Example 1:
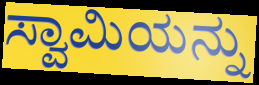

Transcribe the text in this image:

ಸ್ವಾಮಿಯನ್ನು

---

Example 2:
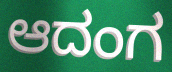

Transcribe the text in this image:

ಆದಂಗ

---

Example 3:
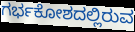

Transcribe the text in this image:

ಗರ್ಭಕೋಶದಲ್ಲಿರುವ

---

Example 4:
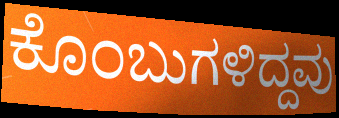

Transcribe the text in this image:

ಕೊಂಬುಗಳಿದ್ದವು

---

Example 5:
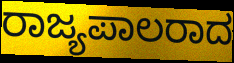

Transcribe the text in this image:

ರಾಜ್ಯಪಾಲರಾದ